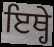
ਇਥ੍ਹੇ